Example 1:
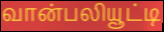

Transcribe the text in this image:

வான்பலியூட்டி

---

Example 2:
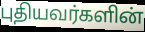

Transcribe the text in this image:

புதியவர்களின்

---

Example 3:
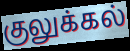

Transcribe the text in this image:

குலுக்கல்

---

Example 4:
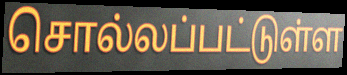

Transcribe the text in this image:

சொல்லப்பட்டுள்ள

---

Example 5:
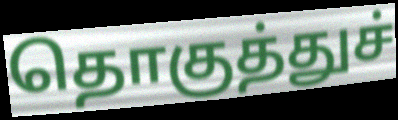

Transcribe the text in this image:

தொகுத்துச்